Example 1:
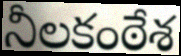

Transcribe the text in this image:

నీలకంఠేశ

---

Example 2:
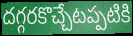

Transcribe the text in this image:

దగ్గరకొచ్చేటప్పటికి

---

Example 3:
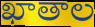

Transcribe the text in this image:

ఖాతాల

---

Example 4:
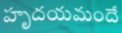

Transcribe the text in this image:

హృదయమందే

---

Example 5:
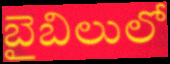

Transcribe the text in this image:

బైబిలులో